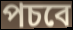
পচবে